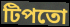
টিপতো